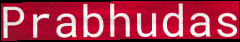
Prabhudas